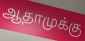
ஆதாமுக்கு